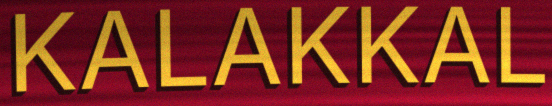
KALAKKAL